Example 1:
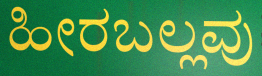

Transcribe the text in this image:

ಹೀರಬಲ್ಲವು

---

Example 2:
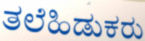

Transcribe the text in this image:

ತಲೆಹಿಡುಕರು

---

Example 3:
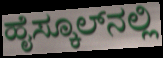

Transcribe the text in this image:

ಹೈಸ್ಕೂಲ್‌ನಲ್ಲಿ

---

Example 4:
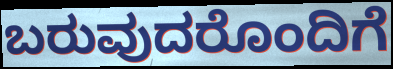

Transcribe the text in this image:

ಬರುವುದರೊಂದಿಗೆ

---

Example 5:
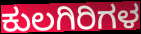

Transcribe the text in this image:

ಕುಲಗಿರಿಗಳ